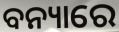
ବନ୍ୟାରେ